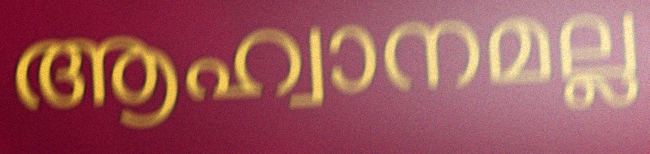
ആഹ്വാനമല്ല